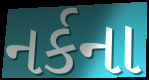
નર્કના